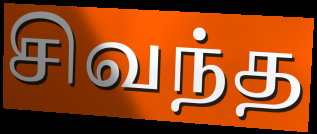
சிவந்த